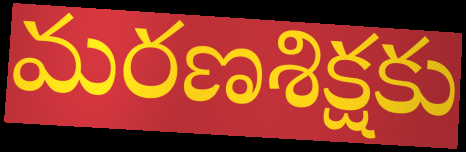
మరణశిక్షకు